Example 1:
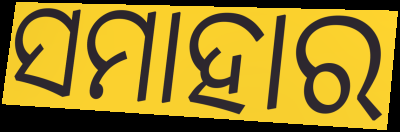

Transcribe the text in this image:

ସମାହାର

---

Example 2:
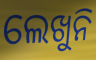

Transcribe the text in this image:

ଲେଖୁନି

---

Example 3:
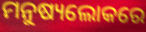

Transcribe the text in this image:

ମନୁଷ୍ୟଲୋକରେ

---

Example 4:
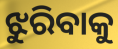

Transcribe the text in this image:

ଝୁରିବାକୁ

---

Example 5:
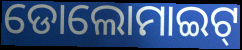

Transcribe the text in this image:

ଡୋଲୋମାଇଟ୍